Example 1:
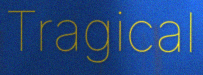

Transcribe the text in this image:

Tragical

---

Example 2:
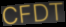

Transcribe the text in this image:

CFDT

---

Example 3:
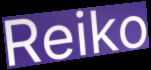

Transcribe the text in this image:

Reiko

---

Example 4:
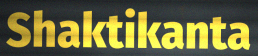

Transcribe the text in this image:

Shaktikanta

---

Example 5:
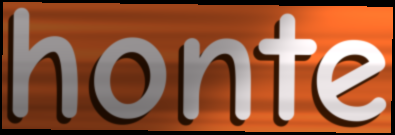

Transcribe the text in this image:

honte